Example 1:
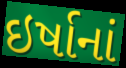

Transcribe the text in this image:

ઇર્ષાનાં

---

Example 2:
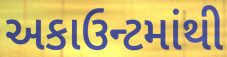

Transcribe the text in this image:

અકાઉન્ટમાંથી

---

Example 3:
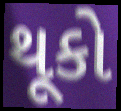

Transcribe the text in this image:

થૂકો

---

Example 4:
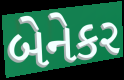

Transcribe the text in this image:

બેનેકર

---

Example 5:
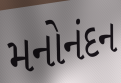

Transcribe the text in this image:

મનોનંદન